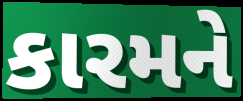
કારમને